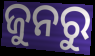
ଜୁନରୁ